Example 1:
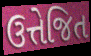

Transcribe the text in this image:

ઉત્તેજિત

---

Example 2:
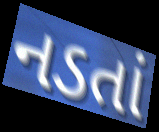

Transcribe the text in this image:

નડતાં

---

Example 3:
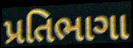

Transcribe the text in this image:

પ્રતિભાગા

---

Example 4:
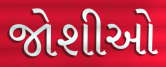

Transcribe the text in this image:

જોશીઓ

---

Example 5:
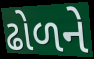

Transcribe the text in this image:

ઢોળને